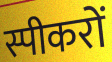
स्पीकरों